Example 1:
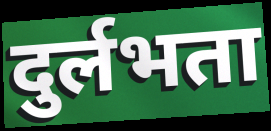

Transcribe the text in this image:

दुर्लभता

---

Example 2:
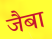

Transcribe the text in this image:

जैबा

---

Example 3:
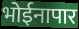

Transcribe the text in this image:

भोईनापार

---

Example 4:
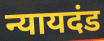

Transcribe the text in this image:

न्यायदंड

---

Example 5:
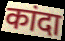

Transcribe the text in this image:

कांदा